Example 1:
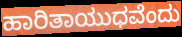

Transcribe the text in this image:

ಹಾರಿತಾಯುಧವೆಂದು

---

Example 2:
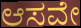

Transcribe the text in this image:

ಆಸವೇ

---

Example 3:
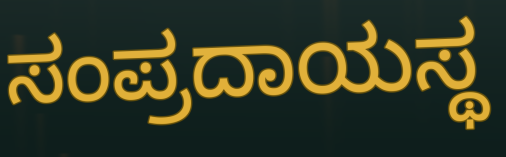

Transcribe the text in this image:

ಸಂಪ್ರದಾಯಸ್ಥ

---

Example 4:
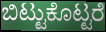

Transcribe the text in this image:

ಬಿಟ್ಟುಕೊಟ್ಟರೆ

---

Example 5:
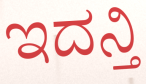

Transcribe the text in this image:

ಇದನ್ತಿ